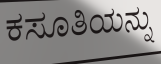
ಕಸೂತಿಯನ್ನು